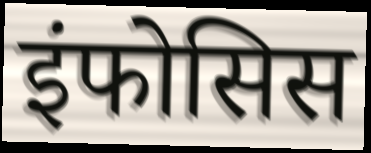
इंफोसिस